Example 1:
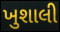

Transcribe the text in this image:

ખુશાલી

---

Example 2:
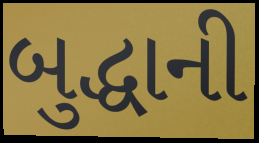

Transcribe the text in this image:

બુદ્ધાની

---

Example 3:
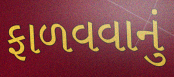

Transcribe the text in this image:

ફાળવવાનું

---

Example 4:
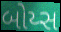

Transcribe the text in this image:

બોય્સ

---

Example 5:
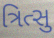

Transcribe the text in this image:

ત્રિત્સુ